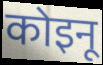
कोइनू